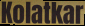
Kolatkar